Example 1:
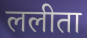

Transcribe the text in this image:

ललीता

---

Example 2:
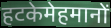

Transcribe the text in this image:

हटकेमेहमानों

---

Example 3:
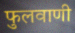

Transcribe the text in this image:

फुलवाणी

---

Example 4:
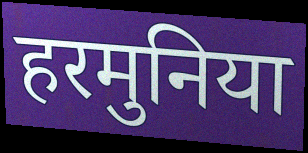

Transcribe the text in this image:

हरमुनिया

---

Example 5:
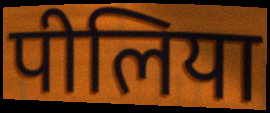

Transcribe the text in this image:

पीलिया